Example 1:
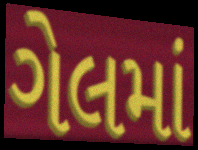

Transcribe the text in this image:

ગેલમાં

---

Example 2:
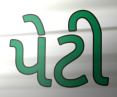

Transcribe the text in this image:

પેટી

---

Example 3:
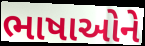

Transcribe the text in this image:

ભાષાઓને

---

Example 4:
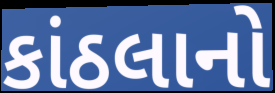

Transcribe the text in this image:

કાંઠલાનો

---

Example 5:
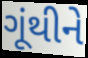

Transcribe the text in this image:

ગૂંથીને